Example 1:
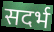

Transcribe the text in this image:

सदर्भ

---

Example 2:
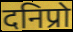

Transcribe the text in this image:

दनिप्रो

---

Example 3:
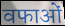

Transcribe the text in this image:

वफाओं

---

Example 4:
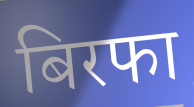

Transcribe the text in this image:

बिरफा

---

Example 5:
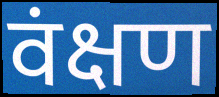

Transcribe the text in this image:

वंक्षण